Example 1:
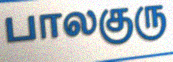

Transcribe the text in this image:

பாலகுரு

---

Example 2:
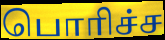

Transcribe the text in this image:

பொரிச்ச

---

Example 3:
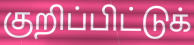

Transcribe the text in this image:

குறிப்பிட்டுக்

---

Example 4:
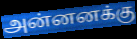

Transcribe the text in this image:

அன்னனக்கு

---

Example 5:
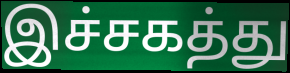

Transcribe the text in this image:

இச்சகத்து